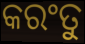
କରଂତୁ